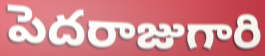
పెదరాజుగారి